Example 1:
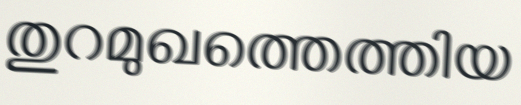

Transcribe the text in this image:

തുറമുഖത്തെത്തിയ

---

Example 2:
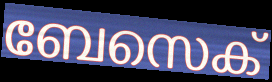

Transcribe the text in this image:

ബേസെക്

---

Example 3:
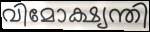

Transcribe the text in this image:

വിമോക്ഷ്യന്തി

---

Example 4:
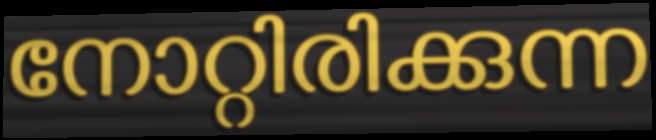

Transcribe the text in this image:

നോറ്റിരിക്കുന്ന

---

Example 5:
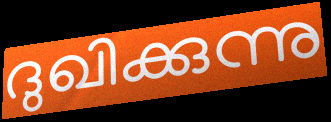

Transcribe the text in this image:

ദുഖിക്കുന്നു